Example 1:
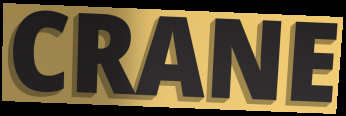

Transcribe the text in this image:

CRANE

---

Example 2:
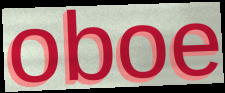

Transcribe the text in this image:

oboe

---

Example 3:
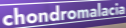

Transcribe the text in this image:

chondromalacia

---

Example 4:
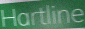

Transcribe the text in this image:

Hartline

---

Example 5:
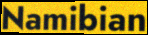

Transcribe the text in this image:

Namibian